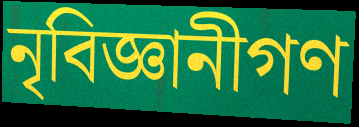
নৃবিজ্ঞানীগণ